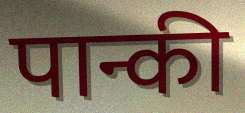
पान्की